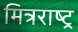
मित्रराष्ट्र